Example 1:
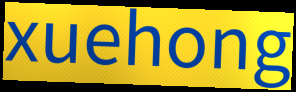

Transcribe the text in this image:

xuehong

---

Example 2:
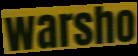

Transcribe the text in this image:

warsho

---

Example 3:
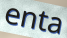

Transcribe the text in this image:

enta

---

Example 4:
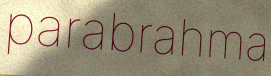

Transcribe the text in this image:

parabrahma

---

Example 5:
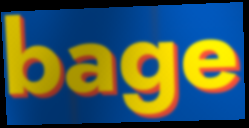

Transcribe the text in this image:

bage